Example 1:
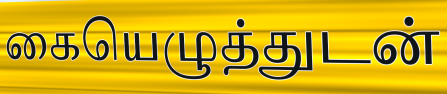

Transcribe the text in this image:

கையெழுத்துடன்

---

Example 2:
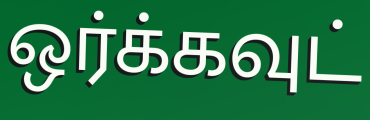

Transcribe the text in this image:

ஒர்க்கவுட்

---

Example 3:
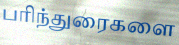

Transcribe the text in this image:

பரிந்துரைகளை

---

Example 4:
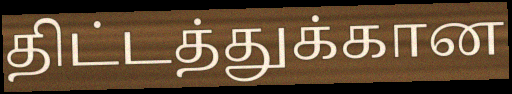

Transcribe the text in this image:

திட்டத்துக்கான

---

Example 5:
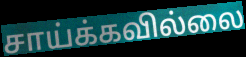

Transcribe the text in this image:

சாய்க்கவில்லை